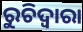
ରୁଚିଦ୍ୱାରା